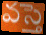
వస్తె